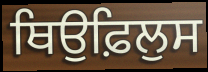
ਥਿਉਫ਼ਿਲੁਸ